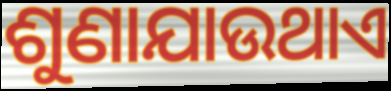
ଶୁଣାଯାଉଥାଏ